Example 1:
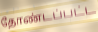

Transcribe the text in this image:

தோண்டப்பட்ட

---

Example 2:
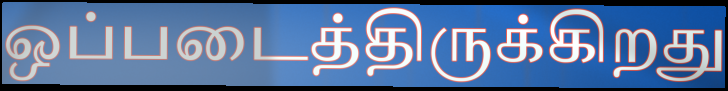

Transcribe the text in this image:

ஒப்படைத்திருக்கிறது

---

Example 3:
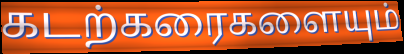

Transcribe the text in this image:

கடற்கரைகளையும்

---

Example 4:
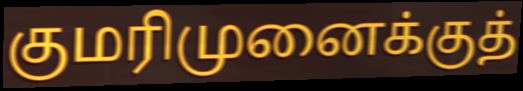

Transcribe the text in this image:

குமரிமுனைக்குத்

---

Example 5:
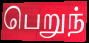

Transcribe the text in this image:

பெறுந்